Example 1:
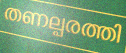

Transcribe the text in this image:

തണല്പരത്തി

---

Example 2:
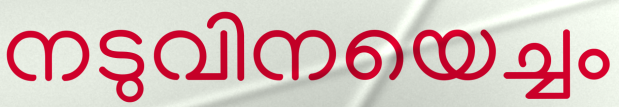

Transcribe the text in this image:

നടുവിനയെച്ചം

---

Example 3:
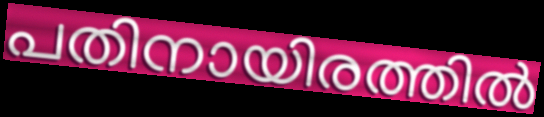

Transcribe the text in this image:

പതിനായിരത്തിൽ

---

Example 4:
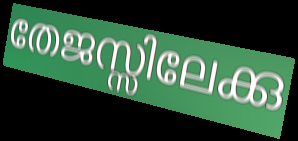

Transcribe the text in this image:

തേജസ്സിലേക്കു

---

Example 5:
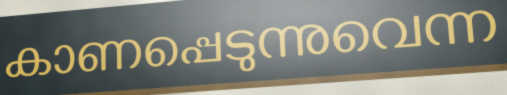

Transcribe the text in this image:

കാണപ്പെടുന്നുവെന്ന